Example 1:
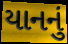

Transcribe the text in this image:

યાનનું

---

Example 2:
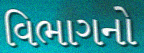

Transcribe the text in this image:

વિભાગનો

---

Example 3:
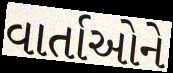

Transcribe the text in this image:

વાર્તાઓને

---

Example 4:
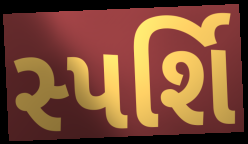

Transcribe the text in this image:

સ્પર્શિ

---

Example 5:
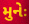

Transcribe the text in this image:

મુનેઃ